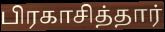
பிரகாசித்தார்